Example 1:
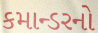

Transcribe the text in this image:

કમાન્ડરનો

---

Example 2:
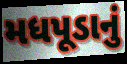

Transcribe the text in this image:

મધપૂડાનું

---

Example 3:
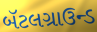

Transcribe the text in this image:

બૅટલગ્રાઉન્ડ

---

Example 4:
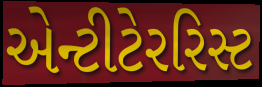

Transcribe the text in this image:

એન્ટીટેરરિસ્ટ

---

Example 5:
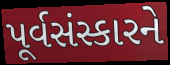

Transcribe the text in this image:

પૂર્વસંસ્કારને